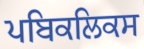
ਪਬਿਕਲਿਕਸ